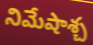
నిమేషాశ్చ